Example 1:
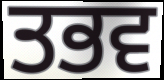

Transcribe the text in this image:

ਤਭਵ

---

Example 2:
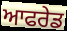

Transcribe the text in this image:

ਆਫਰੇਡ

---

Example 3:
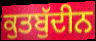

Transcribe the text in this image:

ਕੁਤਬੁੱਦੀਨ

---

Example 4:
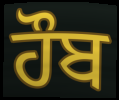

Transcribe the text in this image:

ਹੌਬ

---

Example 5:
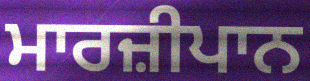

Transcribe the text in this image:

ਮਾਰਜ਼ੀਪਾਨ